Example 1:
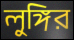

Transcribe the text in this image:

লুঙ্গির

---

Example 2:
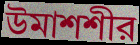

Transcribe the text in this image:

উমাশশীর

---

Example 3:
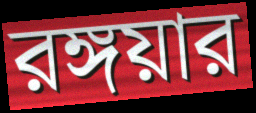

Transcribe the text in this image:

রঙ্গয়ার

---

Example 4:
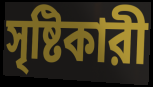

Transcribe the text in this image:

সৃষ্টিকারী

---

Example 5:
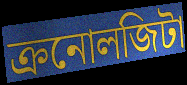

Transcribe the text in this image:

ক্রনোলজিটা